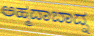
ಅಹ್ಮದಾಬಾದ್ನ